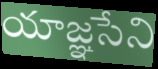
యాజ్ఞసేని